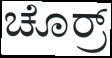
ಚೊರ್ರ್